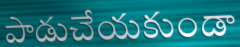
పాడుచేయకుండా